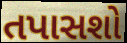
તપાસશો